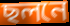
ছলনে